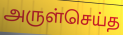
அருள்செய்த